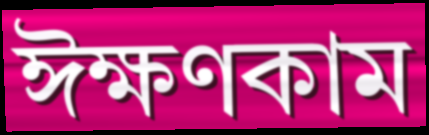
ঈক্ষণকাম